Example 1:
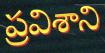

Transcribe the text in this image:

ప్రవిశాని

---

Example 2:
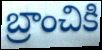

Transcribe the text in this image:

బ్రాంచికి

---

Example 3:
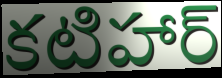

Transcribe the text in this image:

కటిహార్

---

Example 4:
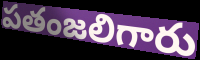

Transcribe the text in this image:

పతంజలిగారు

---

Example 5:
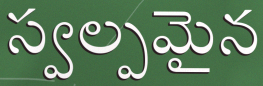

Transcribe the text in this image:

స్వల్పమైన